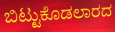
ಬಿಟ್ಟುಕೊಡಲಾರದ